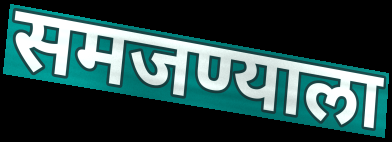
समजण्याला